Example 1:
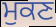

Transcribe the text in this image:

ਮੁਕਣ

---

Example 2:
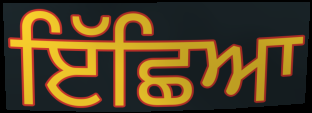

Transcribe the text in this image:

ਇੱਛਿਆ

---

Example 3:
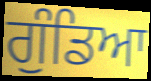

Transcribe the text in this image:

ਗੁੰਡਿਆ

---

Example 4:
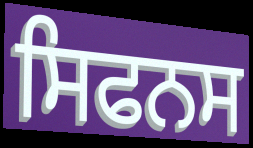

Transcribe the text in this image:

ਸਿਫਨਸ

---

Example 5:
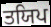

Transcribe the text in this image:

ਤਯਿਪ